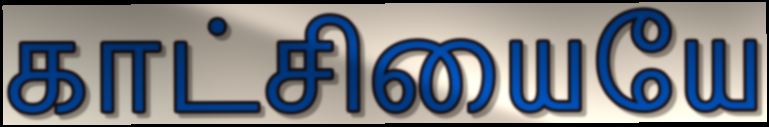
காட்சியையே